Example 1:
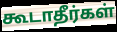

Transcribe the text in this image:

கூடாதீர்கள்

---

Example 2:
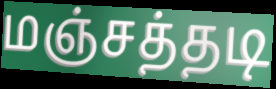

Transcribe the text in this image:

மஞ்சத்தடி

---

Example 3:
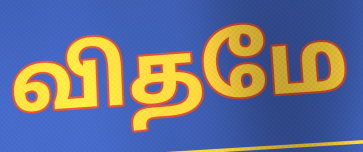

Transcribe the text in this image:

விதமே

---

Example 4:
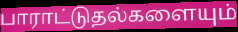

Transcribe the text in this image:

பாராட்டுதல்களையும்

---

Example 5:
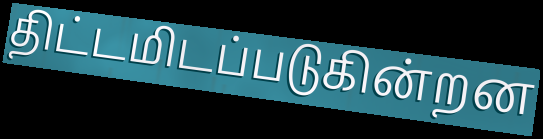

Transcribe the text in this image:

திட்டமிடப்படுகின்றன